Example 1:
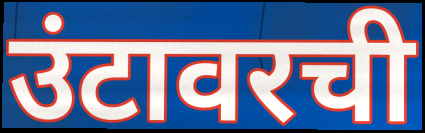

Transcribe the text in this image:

उंटावरची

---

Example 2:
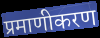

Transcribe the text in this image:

प्रमाणीकरण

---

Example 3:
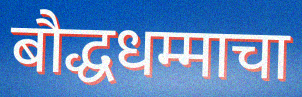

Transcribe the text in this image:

बौद्धधम्माचा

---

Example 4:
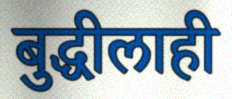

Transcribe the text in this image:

बुद्धीलाही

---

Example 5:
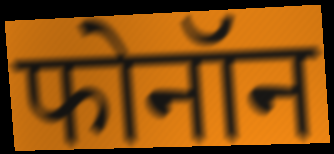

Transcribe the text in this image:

फोनॉन